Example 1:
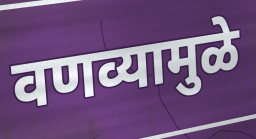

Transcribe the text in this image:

वणव्यामुळे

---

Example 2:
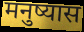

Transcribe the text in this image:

मनुष्यास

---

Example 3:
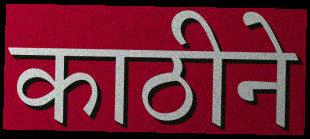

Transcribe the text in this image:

काठीने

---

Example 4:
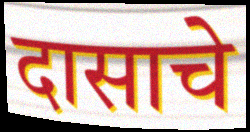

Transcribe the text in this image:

दासाचे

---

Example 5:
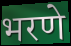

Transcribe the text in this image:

भरणे